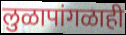
लुळापांगळाही